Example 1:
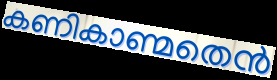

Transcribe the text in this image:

കണികാണ്മതെൻ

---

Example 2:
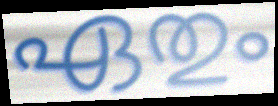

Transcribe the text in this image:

ഏതും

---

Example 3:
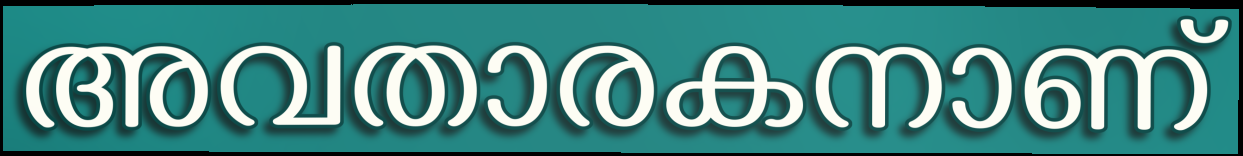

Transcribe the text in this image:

അവതാരകനാണ്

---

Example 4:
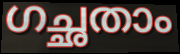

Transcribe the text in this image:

ഗച്ഛതാം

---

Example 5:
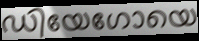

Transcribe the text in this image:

ഡിയേഗോയെ